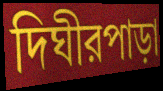
দিঘীরপাড়া